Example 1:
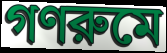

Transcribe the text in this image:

গণরুমে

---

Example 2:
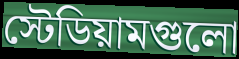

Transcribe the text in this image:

স্টেডিয়ামগুলো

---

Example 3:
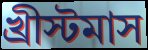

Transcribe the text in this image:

খ্রীস্টমাস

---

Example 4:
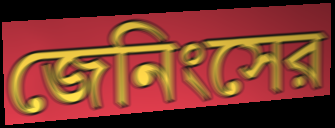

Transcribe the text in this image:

জেনিংসের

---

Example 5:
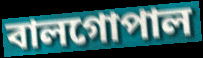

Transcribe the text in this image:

বালগোপাল